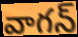
వాగన్